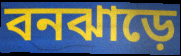
বনঝাড়ে